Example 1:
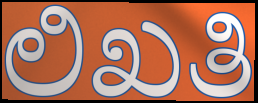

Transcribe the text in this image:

ಲಿಖತಿ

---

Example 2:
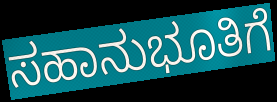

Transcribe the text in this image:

ಸಹಾನುಭೂತಿಗೆ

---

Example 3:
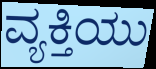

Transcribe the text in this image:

ವ್ಯಕ್ತಿಯು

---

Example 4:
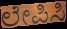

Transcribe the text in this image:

ಲೇಪಿಸಿ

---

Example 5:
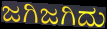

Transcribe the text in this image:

ಜಗಿಜಗಿದು